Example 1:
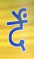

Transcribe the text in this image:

र्दें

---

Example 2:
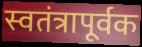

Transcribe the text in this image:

स्वतंत्रापूर्वक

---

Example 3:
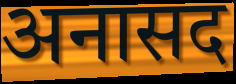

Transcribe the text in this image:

अनासद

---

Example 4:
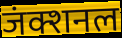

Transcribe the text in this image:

जंक्शनल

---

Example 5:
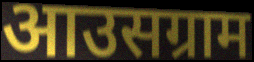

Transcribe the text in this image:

आउसग्राम